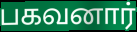
பகவனார்